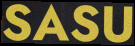
SASU